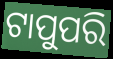
ଟାପୁପରି